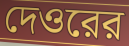
দেওরের